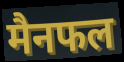
मैनफल